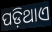
ପଡ଼ିଥାଏ